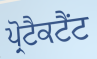
ਪ੍ਰੋਟੈਕਟੈਂਟ